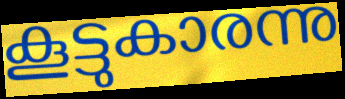
കൂട്ടുകാരന്നു